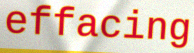
effacing